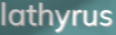
lathyrus